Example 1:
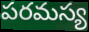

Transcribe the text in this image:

పరమస్య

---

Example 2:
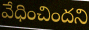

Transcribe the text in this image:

వేధించిందని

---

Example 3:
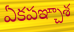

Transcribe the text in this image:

ఏకపఞ్చాశ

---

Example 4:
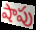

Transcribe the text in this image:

షాపు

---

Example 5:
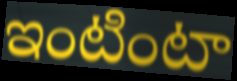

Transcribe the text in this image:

ఇంటింటా